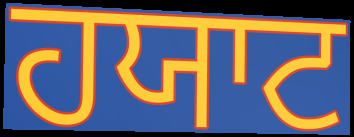
ਹਯਾਟ